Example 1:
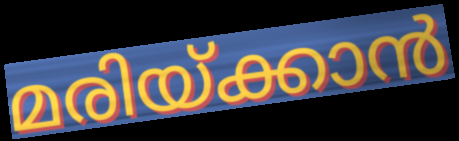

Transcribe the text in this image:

മരിയ്ക്കാൻ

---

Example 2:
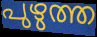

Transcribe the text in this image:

പുഴുത്ത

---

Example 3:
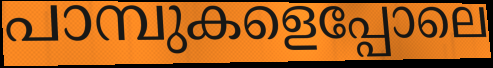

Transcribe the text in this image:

പാമ്പുകളെപ്പോലെ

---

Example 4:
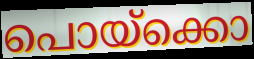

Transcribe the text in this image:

പൊയ്ക്കൊ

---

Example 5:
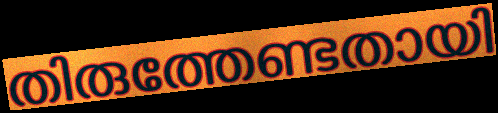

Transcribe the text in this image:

തിരുത്തേണ്ടതായി